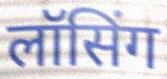
लॉसिंग